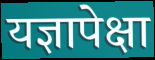
यज्ञापेक्षा